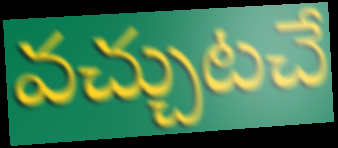
వచ్చుటచే